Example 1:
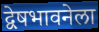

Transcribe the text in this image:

द्वेषभावनेला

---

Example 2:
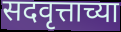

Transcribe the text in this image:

सदवृत्ताच्या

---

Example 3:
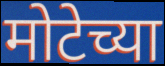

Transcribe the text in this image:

मोटेच्या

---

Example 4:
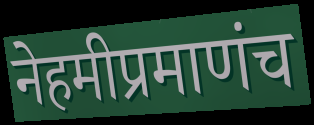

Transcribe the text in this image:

नेहमीप्रमाणंच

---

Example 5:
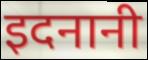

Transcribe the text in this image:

इदनानी